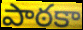
పాఠకా